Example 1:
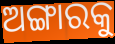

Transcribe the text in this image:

ଅଙ୍ଗାରକୁ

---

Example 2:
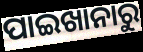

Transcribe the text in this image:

ପାଇଖାନାରୁ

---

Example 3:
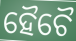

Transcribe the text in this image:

ହୈଚୈ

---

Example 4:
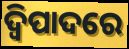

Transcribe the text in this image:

ଦ୍ୱିପାଦରେ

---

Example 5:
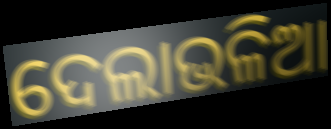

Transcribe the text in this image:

ଦେଲାଭଳିଆ